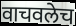
वाचवलेच